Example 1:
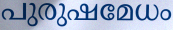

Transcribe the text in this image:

പുരുഷമേധം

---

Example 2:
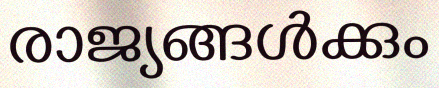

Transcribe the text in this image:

രാജ്യങ്ങൾക്കും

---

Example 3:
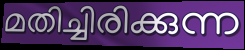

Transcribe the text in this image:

മതിച്ചിരിക്കുന്ന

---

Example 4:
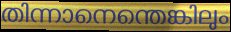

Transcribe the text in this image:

തിന്നാനെന്തെങ്കിലും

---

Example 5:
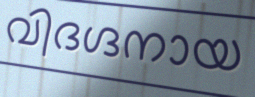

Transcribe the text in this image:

വിദഗ്ദനായ